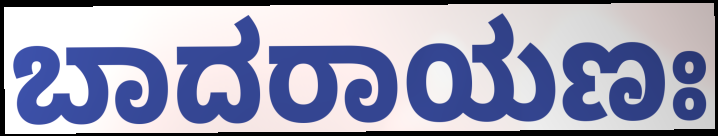
ಬಾದರಾಯಣಃ